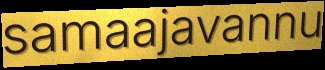
samaajavannu